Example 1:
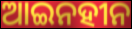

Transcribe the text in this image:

ଆଇନହୀନ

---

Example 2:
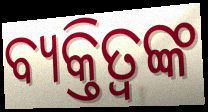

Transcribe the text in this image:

ବ୍ୟକ୍ତିତ୍ବଙ୍କ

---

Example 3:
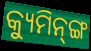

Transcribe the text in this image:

କ୍ୟୁମିନ୍‌ଙ୍ଗ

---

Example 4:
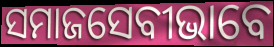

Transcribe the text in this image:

ସମାଜସେବୀଭାବେ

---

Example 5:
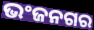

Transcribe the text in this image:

ଭଂଜନଗର